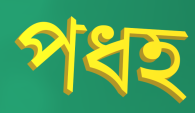
পধহ